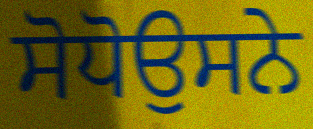
ਸੋਧੋਉਸਨੇ